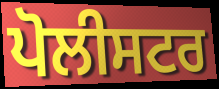
ਪੋਲੀਸਟਰ